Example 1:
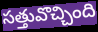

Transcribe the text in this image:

సత్తువొచ్చింది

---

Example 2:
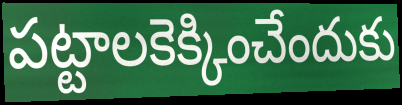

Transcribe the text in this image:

పట్టాలకెక్కించేందుకు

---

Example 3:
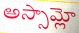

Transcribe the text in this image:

అస్సామ్లో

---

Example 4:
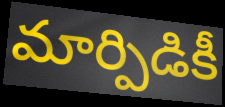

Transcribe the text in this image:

మార్పిడికీ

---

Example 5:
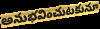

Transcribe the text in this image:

అనుభవించుటకునూ